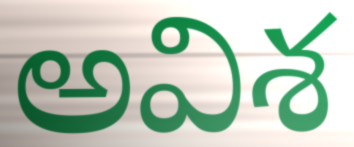
అవిశ